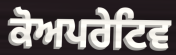
ਕੋਅਪਰੇਟਿਵ